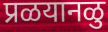
प्रळयानळु